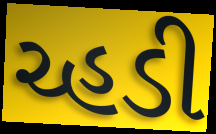
ચ્હડી